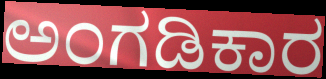
ಅಂಗಡಿಕಾರ